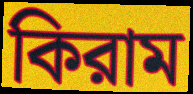
কিরাম